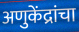
अणुकेंद्रांचा